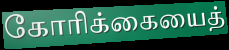
கோரிக்கையைத்